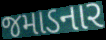
જમાડનાર